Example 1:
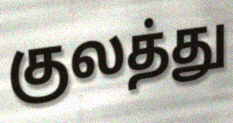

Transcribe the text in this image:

குலத்து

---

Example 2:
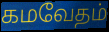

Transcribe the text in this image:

கமவேதம்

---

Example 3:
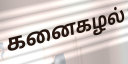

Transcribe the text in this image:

கனைகழல்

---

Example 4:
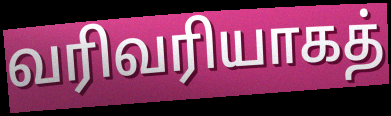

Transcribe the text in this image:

வரிவரியாகத்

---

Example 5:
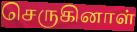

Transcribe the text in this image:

செருகினாள்